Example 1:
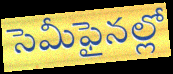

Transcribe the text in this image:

సెమీఫైనల్లో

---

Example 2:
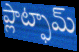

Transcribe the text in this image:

ప్లాట్ఫామ్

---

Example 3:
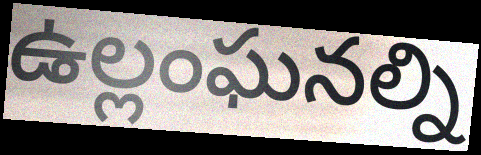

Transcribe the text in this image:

ఉల్లంఘనల్ని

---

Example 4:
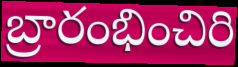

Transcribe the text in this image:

బ్రారంభించిరి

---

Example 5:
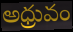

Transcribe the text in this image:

అధ్రువం